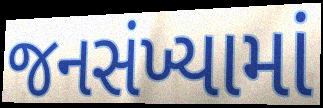
જનસંખ્યામાં